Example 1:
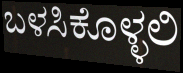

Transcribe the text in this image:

ಬಳಸಿಕೊಳ್ಳಲಿ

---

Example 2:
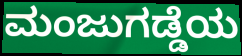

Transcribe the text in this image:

ಮಂಜುಗಡ್ಡೆಯ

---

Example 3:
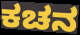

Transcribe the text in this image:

ಕಚನ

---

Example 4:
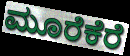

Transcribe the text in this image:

ಮೂರೆಕೆರೆ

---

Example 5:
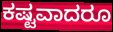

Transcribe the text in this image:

ಕಷ್ಟವಾದರೂ